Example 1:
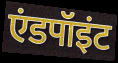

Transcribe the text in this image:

एंडपॉइंट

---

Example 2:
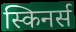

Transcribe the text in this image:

स्किनर्स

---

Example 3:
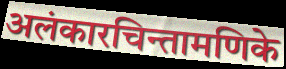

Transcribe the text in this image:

अलंकारचिन्तामणिके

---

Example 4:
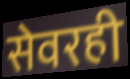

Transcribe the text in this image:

सेवरही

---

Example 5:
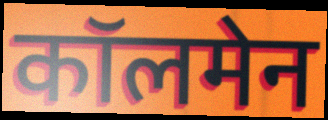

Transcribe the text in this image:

कॉलमेन